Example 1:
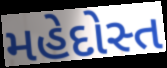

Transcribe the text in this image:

મહેદોસ્ત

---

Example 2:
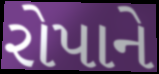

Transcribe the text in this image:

રોપાને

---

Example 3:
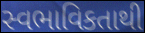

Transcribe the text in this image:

સ્વભાવિકતાથી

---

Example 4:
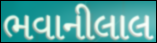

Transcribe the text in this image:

ભવાનીલાલ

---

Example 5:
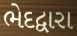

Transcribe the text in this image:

ભેદદ્વારા